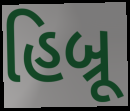
હિબ્રૂ